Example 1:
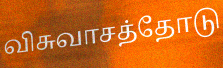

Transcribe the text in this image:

விசுவாசத்தோடு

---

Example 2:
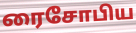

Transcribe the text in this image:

ரைசோபிய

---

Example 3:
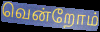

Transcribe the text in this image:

வென்றோம்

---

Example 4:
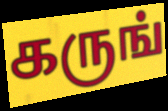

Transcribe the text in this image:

கருங்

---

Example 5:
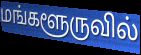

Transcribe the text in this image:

மங்களூருவில்